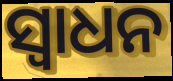
ସ୍ଵାଧନ